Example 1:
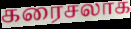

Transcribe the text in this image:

கரைசலாக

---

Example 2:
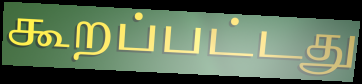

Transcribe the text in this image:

கூறப்பட்டது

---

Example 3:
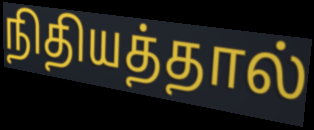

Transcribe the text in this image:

நிதியத்தால்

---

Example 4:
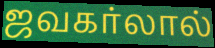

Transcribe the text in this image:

ஜவகர்லால்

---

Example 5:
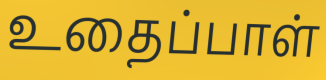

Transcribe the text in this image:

உதைப்பாள்